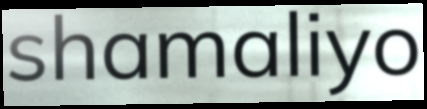
shamaliyo